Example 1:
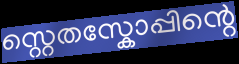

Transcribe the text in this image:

സ്റ്റെതസ്കോപ്പിന്റെ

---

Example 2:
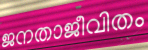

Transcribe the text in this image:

ജനതാജീവിതം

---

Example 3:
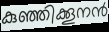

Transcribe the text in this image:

കുഞ്ഞിക്കൂനൻ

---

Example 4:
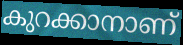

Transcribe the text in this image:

കുറക്കാനാണ്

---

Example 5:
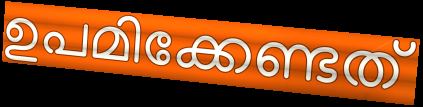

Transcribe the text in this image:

ഉപമിക്കേണ്ടത്